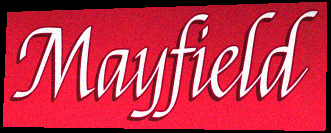
Mayfield